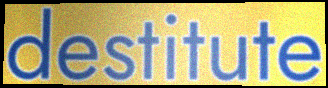
destitute